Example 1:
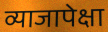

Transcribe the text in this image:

व्याजापेक्षा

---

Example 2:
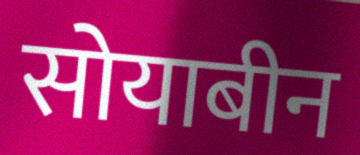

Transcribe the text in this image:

सोयाबीन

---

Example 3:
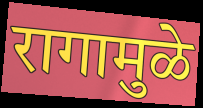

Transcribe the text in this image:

रागामुळे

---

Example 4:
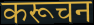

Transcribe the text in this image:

करूचन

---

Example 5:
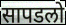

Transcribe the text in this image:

सापडलो